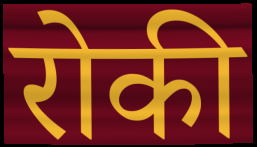
रोकी